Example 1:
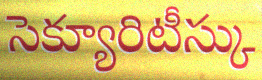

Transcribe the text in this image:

సెక్యూరిటీస్కు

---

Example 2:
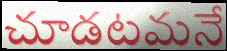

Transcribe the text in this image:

చూడటమనే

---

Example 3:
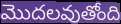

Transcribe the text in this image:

మొదలవుతోంది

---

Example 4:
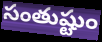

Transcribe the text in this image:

సంతుష్టుం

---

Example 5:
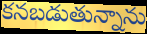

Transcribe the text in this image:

కనబడుతున్నాను